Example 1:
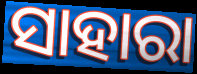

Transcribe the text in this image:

ସାହାରା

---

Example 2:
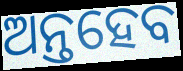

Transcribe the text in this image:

ଅନ୍ତହେବ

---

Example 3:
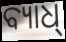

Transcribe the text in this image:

ବ୍ୟାଧ୍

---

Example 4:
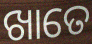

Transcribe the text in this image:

ଖାତେ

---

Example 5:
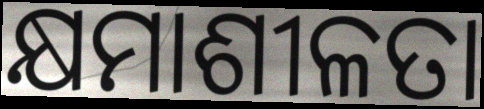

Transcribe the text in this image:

କ୍ଷମାଶୀଳତା